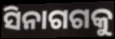
ସିନାଗଗକୁ